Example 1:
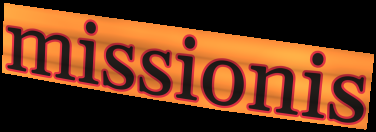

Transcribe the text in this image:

missionis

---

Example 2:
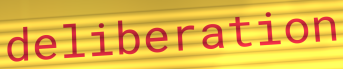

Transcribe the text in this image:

deliberation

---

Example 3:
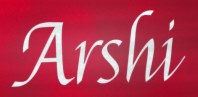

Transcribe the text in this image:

Arshi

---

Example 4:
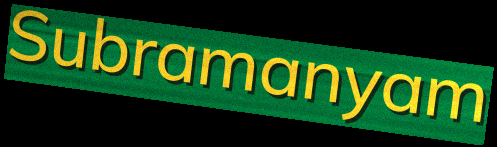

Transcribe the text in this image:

Subramanyam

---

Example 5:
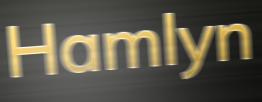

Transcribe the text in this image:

Hamlyn